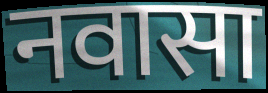
नवासा